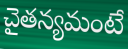
చైతన్యమంటే